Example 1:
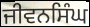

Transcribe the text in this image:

ਜੀਵਨਸਿੰਘ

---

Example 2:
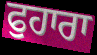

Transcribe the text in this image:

ਫੁਹਾਰਾ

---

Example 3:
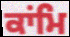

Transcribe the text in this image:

ਕਾਂਮਿ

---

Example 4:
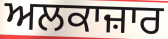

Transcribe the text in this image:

ਅਲਕਾਜ਼ਾਰ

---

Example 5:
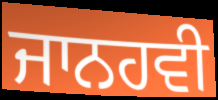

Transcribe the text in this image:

ਜਾਨਹਵੀ